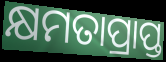
କ୍ଷମତାପ୍ରାପ୍ତ